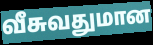
வீசுவதுமான